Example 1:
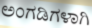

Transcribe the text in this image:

ಅಂಗಡಿಗಳಾಗಿ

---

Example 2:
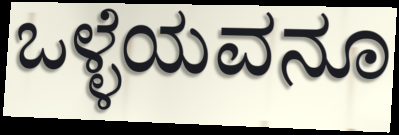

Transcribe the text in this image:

ಒಳ್ಳೆಯವನೂ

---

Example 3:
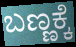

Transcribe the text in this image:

ಬಣ್ಣಕ್ಕೆ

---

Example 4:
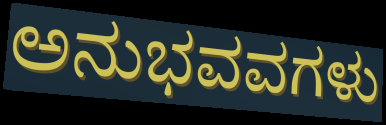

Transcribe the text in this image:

ಅನುಭವವಗಳು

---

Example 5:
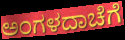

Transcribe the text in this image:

ಅಂಗಳದಾಚೆಗೆ